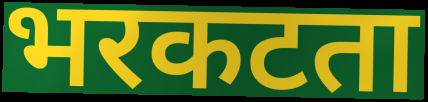
भरकटता